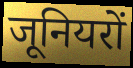
जूनियरों